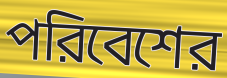
পরিবেশের